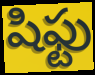
షిఫ్టు